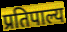
प्रतिपाल्य